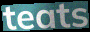
teats